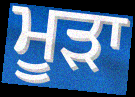
ਮੂੜਾ